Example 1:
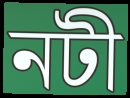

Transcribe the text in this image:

নটী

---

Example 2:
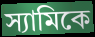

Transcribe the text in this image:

স্যামিকে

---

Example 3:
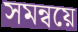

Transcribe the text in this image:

সমন্বয়ে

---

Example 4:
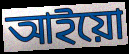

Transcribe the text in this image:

আইয়ো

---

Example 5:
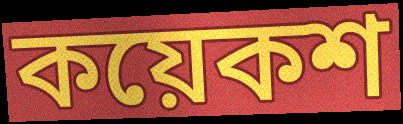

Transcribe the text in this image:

কয়েকশ